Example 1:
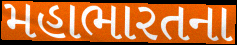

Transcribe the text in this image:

મહાભારતના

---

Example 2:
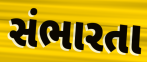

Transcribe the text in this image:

સંભારતા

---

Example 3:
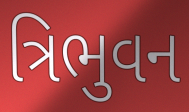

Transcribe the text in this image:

ત્રિભુવન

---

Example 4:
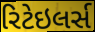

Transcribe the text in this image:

રિટેઇલર્સ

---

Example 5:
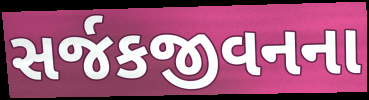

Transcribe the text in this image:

સર્જકજીવનના